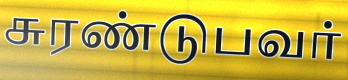
சுரண்டுபவர்